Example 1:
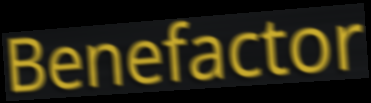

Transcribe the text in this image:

Benefactor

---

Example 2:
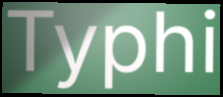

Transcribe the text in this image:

Typhi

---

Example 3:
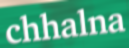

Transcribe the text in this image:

chhalna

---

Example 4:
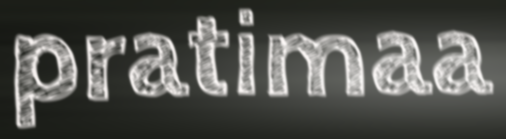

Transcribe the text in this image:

pratimaa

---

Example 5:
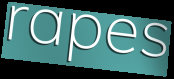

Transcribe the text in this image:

rapes